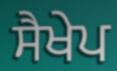
ਸੈਖੇਪ